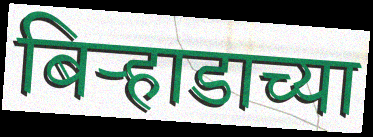
बिऱ्हाडाच्या